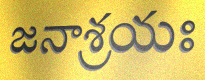
జనాశ్రయః